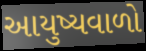
આયુષ્યવાળો